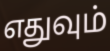
எதுவும்